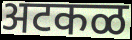
अटकळ